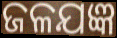
ଜଳଯଜ୍ଞ